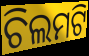
ଚିଲମଟି